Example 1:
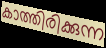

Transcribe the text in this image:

കാത്തിരിക്കുന്ന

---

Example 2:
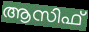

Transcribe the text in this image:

ആസിഫ്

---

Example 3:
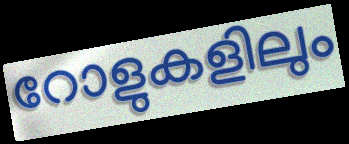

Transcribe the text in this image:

റോളുകളിലും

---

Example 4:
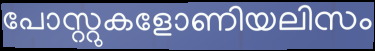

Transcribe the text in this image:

പോസ്റ്റുകളോണിയലിസം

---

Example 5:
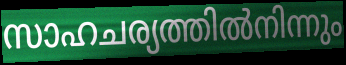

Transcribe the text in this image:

സാഹചര്യത്തിൽനിന്നും